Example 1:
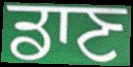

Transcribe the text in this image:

ਡਾਣ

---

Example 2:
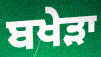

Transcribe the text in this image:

ਬਖੇੜਾ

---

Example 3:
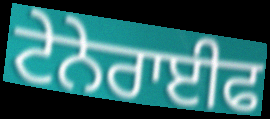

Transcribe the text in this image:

ਟੇਨੇਰਾਈਫ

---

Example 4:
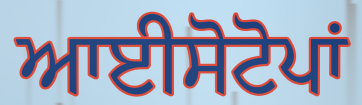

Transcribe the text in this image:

ਆਈਸੋਟੋਪਾਂ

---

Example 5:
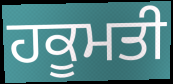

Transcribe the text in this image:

ਹਕੂਮਤੀ